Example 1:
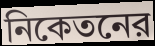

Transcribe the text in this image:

নিকেতনের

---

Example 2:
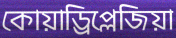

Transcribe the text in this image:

কোয়াড্রিপ্লেজিয়া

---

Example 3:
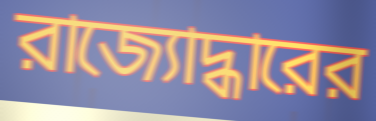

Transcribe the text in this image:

রাজ্যোদ্ধারের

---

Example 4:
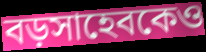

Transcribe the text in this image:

বড়সাহেবকেও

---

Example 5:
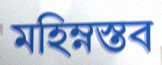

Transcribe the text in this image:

মহিম্নস্তব